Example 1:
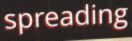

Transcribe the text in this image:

spreading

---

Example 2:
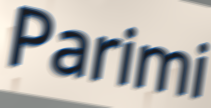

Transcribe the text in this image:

Parimi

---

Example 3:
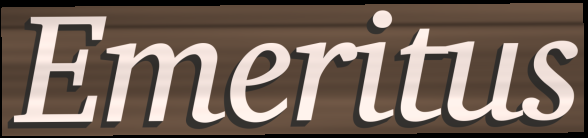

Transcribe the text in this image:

Emeritus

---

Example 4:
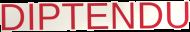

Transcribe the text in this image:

DIPTENDU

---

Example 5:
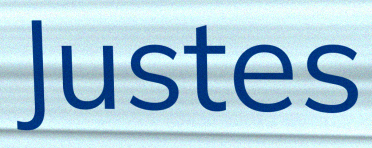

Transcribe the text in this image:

Justes